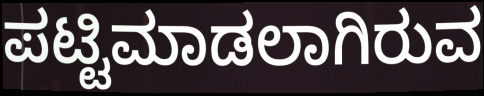
ಪಟ್ಟಿಮಾಡಲಾಗಿರುವ